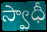
స్వాధీ